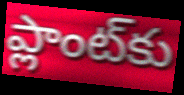
ప్లాంట్‌కు